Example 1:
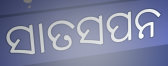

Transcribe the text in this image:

ସାତସପନ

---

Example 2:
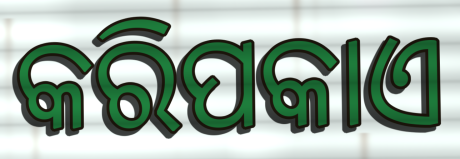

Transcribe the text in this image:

କରିପକାଏ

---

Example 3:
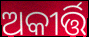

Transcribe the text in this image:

ଅକୀର୍ତ୍ତି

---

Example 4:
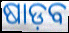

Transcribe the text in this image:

ଷାଡ଼ବ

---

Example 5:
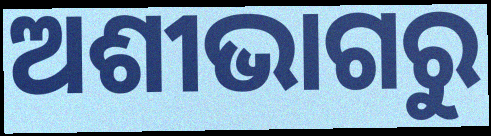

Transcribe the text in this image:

ଅଶୀଭାଗରୁ